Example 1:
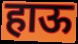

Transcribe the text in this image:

हाऊ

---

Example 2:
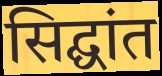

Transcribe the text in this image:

सिद्घांत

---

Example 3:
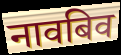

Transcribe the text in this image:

नावबिव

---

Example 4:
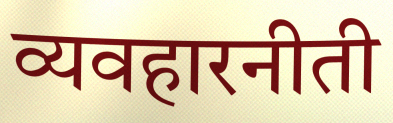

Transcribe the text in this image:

व्यवहारनीती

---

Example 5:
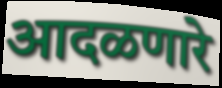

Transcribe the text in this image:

आदळणारे